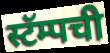
स्टॅम्पची